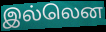
இல்லென